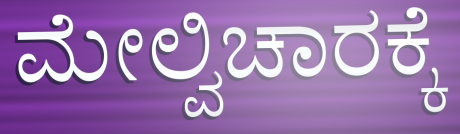
ಮೇಲ್ವಿಚಾರಕ್ಕೆ